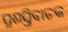
ପ୍ରଶସ୍ତିବାଚକ